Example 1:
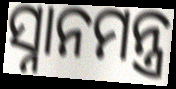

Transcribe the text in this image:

ସ୍ନାନମନ୍ତ୍ର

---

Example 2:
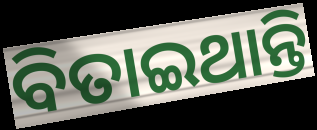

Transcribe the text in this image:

ବିତାଇଥାନ୍ତି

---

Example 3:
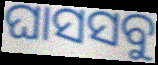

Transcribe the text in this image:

ଘାସସବୁ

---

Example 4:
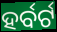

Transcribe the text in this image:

ହର୍ବର୍ଟ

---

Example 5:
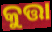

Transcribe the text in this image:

କୁତ୍ତା